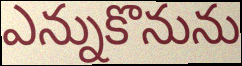
ఎన్నుకొనును